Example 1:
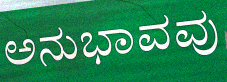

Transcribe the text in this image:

ಅನುಭಾವವು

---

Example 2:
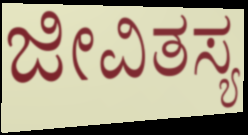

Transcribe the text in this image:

ಜೀವಿತಸ್ಯ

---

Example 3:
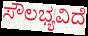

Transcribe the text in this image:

ಸೌಲಭ್ಯವಿದೆ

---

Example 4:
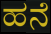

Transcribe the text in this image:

ಹನೆ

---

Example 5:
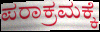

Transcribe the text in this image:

ಪರಾಕ್ರಮಕ್ಕೆ